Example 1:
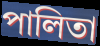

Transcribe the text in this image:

পালিতা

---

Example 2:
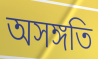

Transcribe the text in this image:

অসঙ্গতি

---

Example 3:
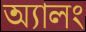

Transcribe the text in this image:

অ্যালং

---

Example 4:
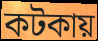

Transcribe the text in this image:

কটকায়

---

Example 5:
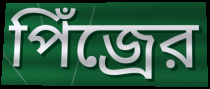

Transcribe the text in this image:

পিঁজ্রের